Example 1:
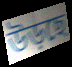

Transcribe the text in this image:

উড়ছে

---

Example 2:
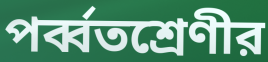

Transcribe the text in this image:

পর্ব্বতশ্রেণীর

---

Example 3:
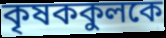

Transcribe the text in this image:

কৃষককুলকে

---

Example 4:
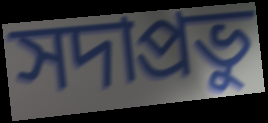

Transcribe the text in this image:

সদাপ্রভু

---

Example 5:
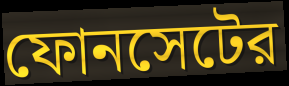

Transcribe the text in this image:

ফোনসেটের